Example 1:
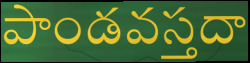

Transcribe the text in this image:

పాండవస్తదా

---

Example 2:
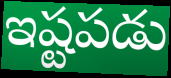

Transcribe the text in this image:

ఇష్టపడు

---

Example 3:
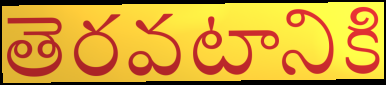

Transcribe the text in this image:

తెరవటానికి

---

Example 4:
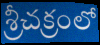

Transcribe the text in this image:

శ్రీచక్రంలో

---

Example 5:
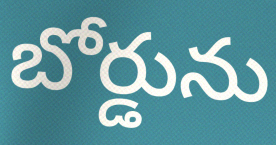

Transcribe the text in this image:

బోర్డును